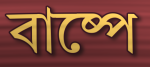
বাষ্পে